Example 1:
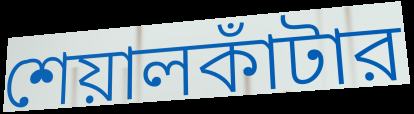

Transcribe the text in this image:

শেয়ালকাঁটার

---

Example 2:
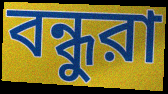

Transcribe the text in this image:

বন্ধুরা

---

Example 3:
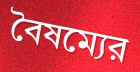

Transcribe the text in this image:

বৈষম্যের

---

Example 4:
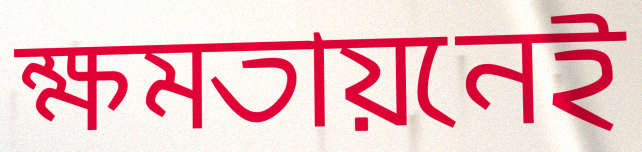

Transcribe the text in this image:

ক্ষমতায়নেই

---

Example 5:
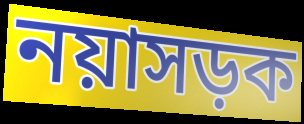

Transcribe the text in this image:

নয়াসড়ক